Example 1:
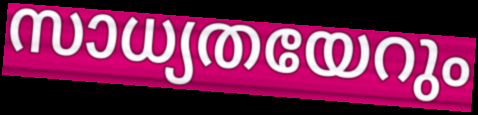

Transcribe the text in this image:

സാധ്യതയേറും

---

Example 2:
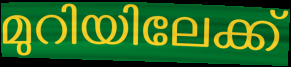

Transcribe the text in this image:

മുറിയിലേക്ക്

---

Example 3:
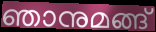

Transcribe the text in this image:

ഞാനുമങ്ങ്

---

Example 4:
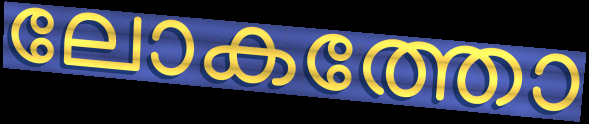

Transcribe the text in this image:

ലോകത്തോ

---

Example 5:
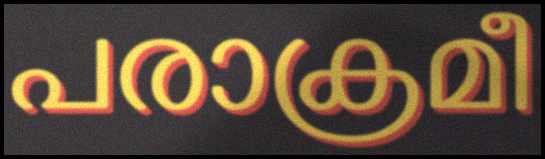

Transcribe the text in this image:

പരാക്രമീ